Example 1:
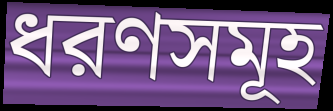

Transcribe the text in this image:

ধরণসমূহ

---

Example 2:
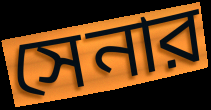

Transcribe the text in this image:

সেনার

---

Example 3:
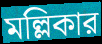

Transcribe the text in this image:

মল্লিকার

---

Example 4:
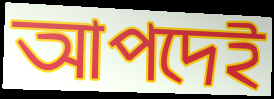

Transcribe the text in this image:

আপদেই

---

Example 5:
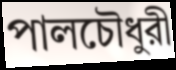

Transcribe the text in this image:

পালচৌধুরী